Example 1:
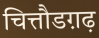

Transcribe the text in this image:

चित्तौडग़ढ़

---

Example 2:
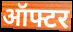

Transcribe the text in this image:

ऑफ्टर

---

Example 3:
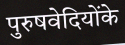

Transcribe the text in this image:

पुरुषवेदियोंके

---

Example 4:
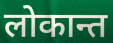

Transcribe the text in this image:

लोकान्त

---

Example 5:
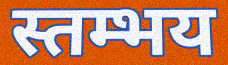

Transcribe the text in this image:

स्तम्भय